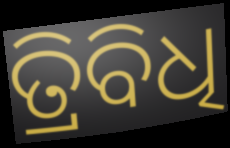
ତ୍ରିବିଧି